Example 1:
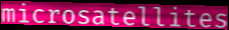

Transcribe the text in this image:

microsatellites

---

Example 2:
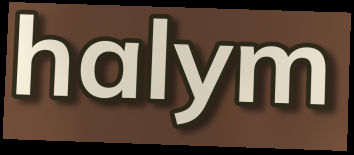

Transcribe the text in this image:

halym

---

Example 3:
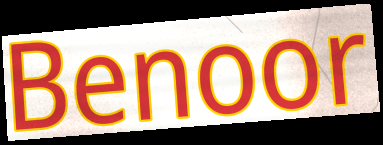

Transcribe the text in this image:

Benoor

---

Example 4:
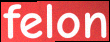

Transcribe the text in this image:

felon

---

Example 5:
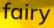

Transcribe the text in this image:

fairy